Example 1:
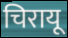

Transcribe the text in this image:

चिरायू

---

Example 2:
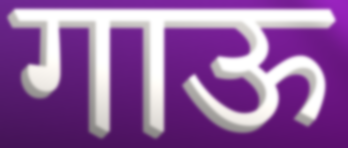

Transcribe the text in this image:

गाऊ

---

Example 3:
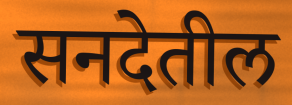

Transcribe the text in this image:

सनदेतील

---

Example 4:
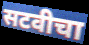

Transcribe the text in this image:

सटवीचा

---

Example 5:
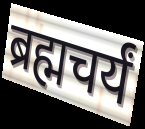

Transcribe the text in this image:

ब्रह्मचर्यं